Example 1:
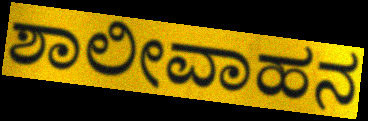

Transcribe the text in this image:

ಶಾಲೀವಾಹನ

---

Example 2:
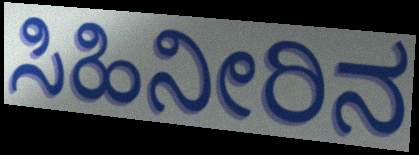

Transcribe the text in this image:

ಸಿಹಿನೀರಿನ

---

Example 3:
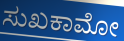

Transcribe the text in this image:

ಸುಖಕಾಮೋ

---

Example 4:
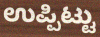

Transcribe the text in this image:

ಉಪ್ಪಿಟ್ಟು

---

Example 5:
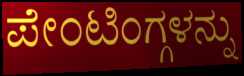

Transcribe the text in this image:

ಪೇಂಟಿಂಗ್ಗಳನ್ನು